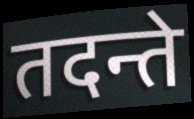
तदन्ते